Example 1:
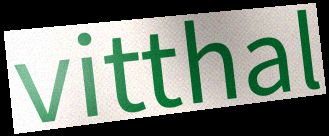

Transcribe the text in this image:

vitthal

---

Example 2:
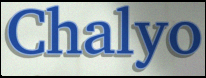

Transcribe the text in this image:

Chalyo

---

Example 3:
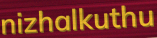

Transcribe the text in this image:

nizhalkuthu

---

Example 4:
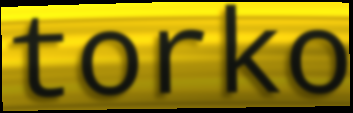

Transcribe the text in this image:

torko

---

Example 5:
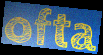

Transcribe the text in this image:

ofta